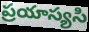
ప్రయాస్యసి